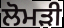
ਲੋਮੜੀ